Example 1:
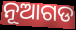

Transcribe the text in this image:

ନୂଆଗଡ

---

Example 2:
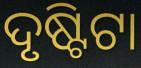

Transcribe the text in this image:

ଦୃଷ୍ଟିଟା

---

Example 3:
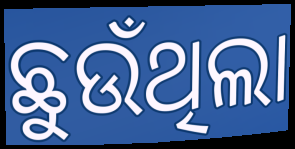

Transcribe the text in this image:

ଛୁଉଁଥିଲା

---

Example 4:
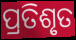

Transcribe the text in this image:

ପ୍ରତିଶୃତ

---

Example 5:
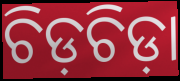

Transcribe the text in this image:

ଚିଡ଼ଚିଡ଼ା